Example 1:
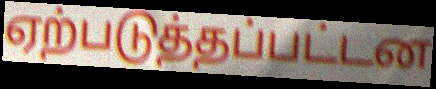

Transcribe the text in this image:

ஏற்படுத்தப்பட்டன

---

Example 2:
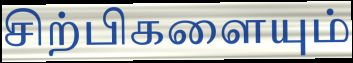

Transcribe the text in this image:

சிற்பிகளையும்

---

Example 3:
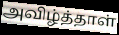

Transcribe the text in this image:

அவிழ்த்தாள்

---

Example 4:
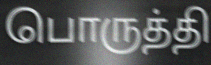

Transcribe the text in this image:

பொருத்தி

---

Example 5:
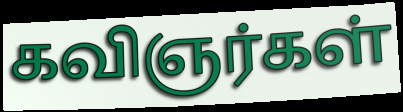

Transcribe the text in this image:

கவிஞர்கள்